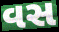
વસ